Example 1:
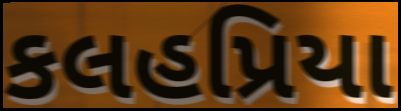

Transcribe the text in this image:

કલહપ્રિયા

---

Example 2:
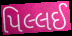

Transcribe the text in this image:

પિલ્લઈ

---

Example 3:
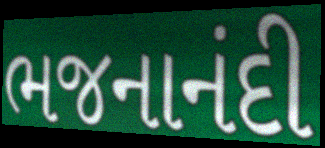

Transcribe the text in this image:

ભજનાનંદી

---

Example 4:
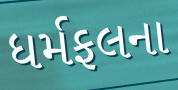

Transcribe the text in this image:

ધર્મફલના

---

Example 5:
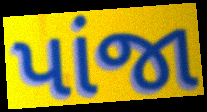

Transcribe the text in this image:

પાંજા